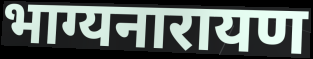
भाग्यनारायण